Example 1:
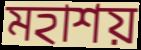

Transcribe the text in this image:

মহাশয়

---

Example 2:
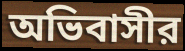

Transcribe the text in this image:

অভিবাসীর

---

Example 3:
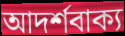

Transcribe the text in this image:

আদর্শবাক্য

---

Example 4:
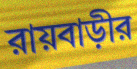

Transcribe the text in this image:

রায়বাড়ীর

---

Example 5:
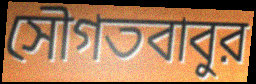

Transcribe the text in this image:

সৌগতবাবুর